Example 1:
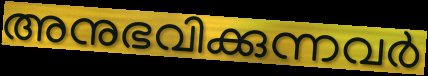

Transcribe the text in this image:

അനുഭവിക്കുന്നവർ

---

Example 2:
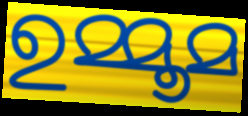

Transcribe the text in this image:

ഉമ്മൂമ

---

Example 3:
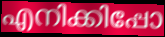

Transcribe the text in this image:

എനിക്കിപ്പോ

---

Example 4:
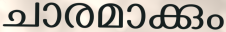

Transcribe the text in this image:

ചാരമാക്കും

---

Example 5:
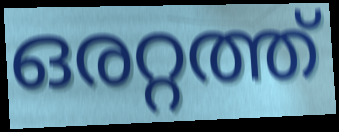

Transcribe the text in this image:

ഒരറ്റത്ത്